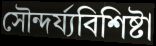
সৌন্দর্য্যবিশিষ্টা